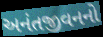
અનંતજીવનનો